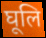
घूलि